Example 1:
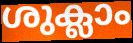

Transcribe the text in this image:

ശുക്ലാം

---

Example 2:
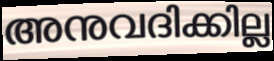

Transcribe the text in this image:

അനുവദിക്കില്ല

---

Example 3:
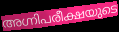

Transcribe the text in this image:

അഗ്നിപരീക്ഷയുടെ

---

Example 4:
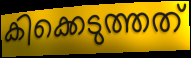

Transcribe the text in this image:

കിക്കെടുത്തത്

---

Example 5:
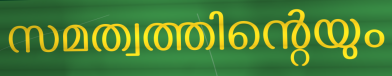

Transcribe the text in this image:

സമത്വത്തിന്റെയും